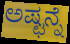
ಅಷ್ಟನ್ನೆ